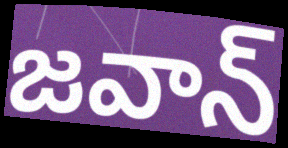
జవాన్